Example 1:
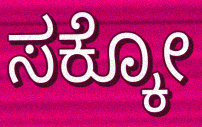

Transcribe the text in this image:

ಸಕ್ಕೋ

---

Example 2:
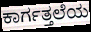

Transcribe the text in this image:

ಕಾರ್ಗತ್ತಲೆಯ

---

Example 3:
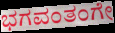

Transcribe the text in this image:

ಭಗವಂತಂಗೇ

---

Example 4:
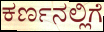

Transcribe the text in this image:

ಕರ್ಣನಲ್ಲಿಗೆ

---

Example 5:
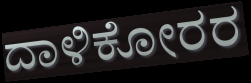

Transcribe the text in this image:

ದಾಳಿಕೋರರ